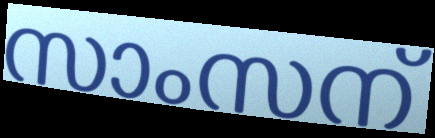
സാംസന്